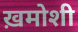
ख़मोशी